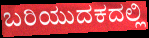
ಬರಿಯುದಕದಲ್ಲಿ